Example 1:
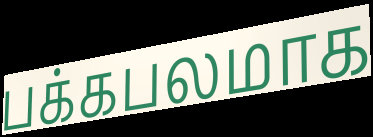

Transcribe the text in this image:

பக்கபலமாக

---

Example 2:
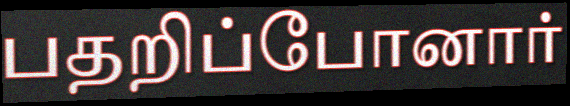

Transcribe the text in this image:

பதறிப்போனார்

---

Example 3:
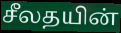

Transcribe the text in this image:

சீலதயின்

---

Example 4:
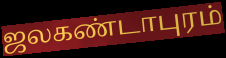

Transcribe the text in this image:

ஜலகண்டாபுரம்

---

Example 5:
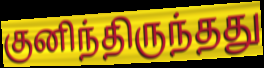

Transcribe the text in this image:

குனிந்திருந்தது